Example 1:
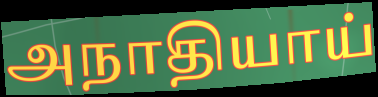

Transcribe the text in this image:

அநாதியாய்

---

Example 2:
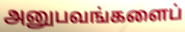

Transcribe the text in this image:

அனுபவங்களைப்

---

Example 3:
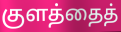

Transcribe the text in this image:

குளத்தைத்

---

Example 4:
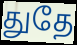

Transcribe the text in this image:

துதே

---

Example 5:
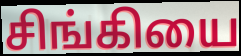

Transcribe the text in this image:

சிங்கியை